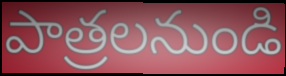
పాత్రలనుండి